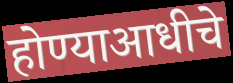
होण्याआधीचे